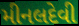
મીનલદેવી